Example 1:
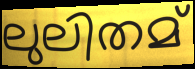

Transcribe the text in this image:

ലുലിതമ്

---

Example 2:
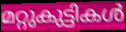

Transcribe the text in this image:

മറ്റുകുട്ടികൾ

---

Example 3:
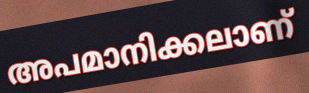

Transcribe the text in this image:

അപമാനിക്കലാണ്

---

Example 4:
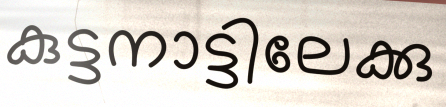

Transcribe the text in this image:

കുട്ടനാട്ടിലേക്കു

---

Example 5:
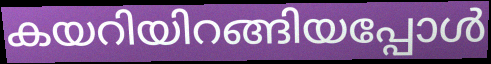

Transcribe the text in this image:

കയറിയിറങ്ങിയപ്പോൾ